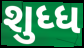
શુધ્ધ